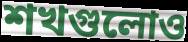
শখগুলোও